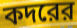
কদরের